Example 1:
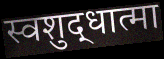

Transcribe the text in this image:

स्वशुद्धात्मा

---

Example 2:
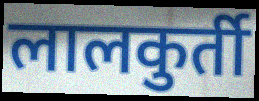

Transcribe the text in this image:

लालकुर्ती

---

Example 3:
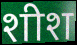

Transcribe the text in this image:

शीश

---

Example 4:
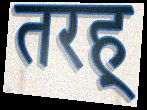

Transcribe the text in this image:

तरह्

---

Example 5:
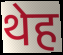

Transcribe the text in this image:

थेह